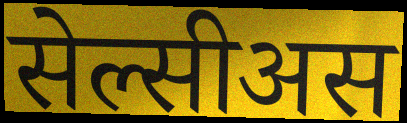
सेल्सीअस